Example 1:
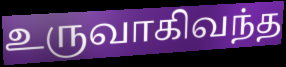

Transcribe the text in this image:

உருவாகிவந்த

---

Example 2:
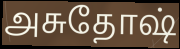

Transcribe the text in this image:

அசுதோஷ்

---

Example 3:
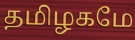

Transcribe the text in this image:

தமிழகமே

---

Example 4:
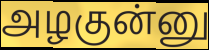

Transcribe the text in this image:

அழகுன்னு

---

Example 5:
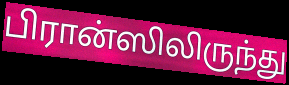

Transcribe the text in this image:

பிரான்ஸிலிருந்து